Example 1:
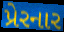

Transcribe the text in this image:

પ્રેરનાર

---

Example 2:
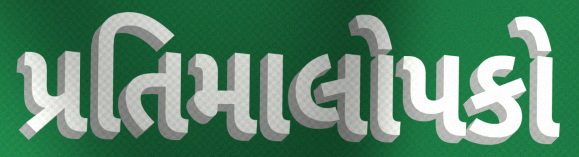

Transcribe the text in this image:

પ્રતિમાલોપકો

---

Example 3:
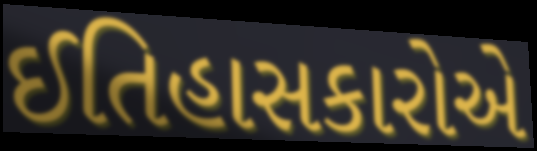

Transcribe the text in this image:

ઈતિહાસકારોએ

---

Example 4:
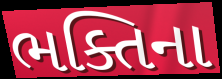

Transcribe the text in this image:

ભક્તિના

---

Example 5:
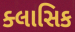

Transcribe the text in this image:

ક્લાસિક